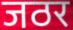
जठर